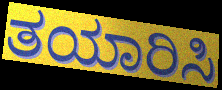
ತಯಾರಿಸಿ